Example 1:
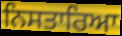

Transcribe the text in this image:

ਨਿਸਤਾਰਿਆ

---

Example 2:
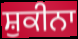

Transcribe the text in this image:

ਸ਼ੁਕੀਨਾ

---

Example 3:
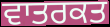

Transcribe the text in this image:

ਵਾਤਰਕਤ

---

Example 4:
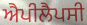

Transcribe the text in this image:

ਐਪੀਲੈਪਸੀ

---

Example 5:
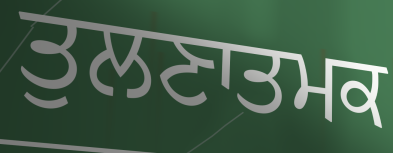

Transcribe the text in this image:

ਤੁਲਣਾਤਮਕ